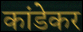
कांडेकर